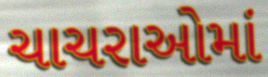
ચાચરાઓમાં